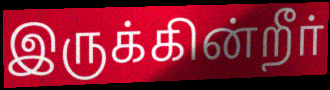
இருக்கின்றீர்